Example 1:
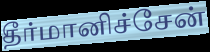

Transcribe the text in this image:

தீர்மானிச்சேன்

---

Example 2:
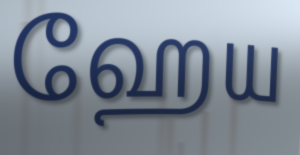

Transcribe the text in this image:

ஹேய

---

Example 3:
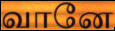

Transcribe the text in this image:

வானே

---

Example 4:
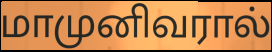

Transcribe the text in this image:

மாமுனிவரால்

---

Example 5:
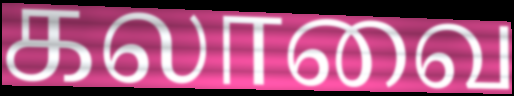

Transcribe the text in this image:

கலாவை